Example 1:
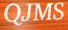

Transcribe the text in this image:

QJMS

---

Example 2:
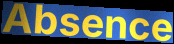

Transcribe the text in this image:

Absence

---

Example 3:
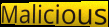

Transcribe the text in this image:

Malicious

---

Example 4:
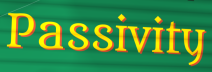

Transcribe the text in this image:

Passivity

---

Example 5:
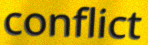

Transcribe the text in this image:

conflict